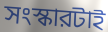
সংস্কারটাই